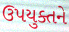
ઉપયુક્તને